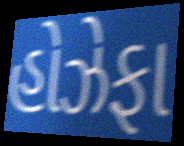
હોઝેફા